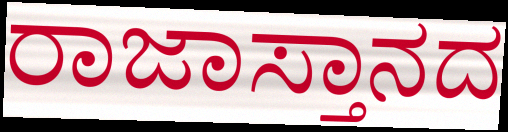
ರಾಜಾಸ್ತಾನದ